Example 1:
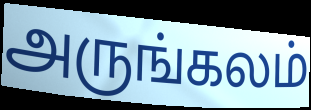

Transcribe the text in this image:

அருங்கலம்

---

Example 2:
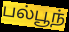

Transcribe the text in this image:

பல்பூந்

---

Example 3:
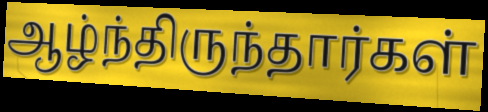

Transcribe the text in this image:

ஆழ்ந்திருந்தார்கள்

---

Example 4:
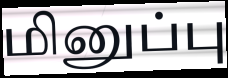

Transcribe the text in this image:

மினுப்பு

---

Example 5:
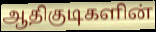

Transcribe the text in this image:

ஆதிகுடிகளின்